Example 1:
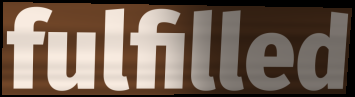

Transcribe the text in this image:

fulfilled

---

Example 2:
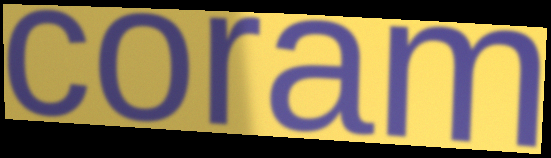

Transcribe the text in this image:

coram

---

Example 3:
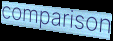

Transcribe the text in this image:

comparison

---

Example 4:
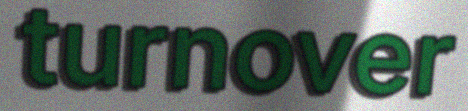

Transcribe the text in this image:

turnover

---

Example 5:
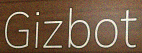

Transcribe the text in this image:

Gizbot